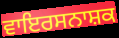
ਵਾਇਰਸਨਾਸ਼ਕ